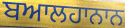
ਬਆਲਹਾਨਾਨ